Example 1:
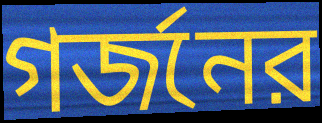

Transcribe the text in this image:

গর্জনের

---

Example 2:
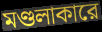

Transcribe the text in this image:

মণ্ডলাকারে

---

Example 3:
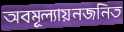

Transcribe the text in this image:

অবমূল্যায়নজনিত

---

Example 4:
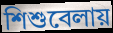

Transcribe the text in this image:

শিশুবেলায়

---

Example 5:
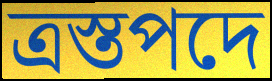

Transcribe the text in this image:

ত্রস্তপদে